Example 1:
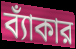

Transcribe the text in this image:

ব্যাঁকার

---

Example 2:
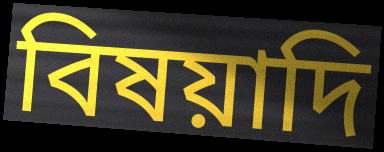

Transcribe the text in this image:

বিষয়াদি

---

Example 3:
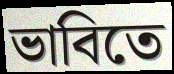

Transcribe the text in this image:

ভাবিতে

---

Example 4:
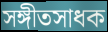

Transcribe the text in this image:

সঙ্গীতসাধক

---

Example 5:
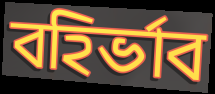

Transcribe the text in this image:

বহির্ভাব